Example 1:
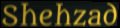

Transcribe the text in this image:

Shehzad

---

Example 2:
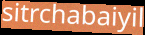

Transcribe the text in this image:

sitrchabaiyil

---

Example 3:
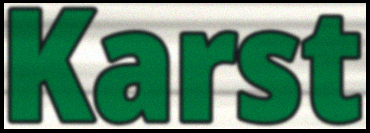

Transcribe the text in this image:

Karst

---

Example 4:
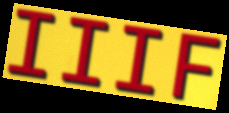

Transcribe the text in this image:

IIIF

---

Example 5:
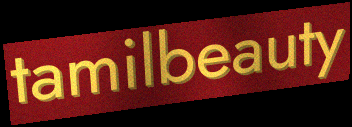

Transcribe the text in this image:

tamilbeauty